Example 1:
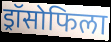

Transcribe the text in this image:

ड्रॉसोफिला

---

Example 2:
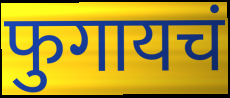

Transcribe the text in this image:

फुगायचं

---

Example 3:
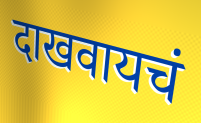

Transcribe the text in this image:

दाखवायचं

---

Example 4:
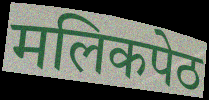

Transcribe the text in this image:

मलिकपेठ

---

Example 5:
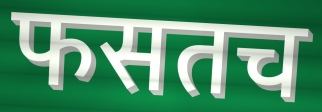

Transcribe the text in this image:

फसतच